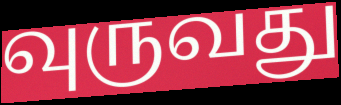
வுருவது